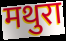
मथुरा